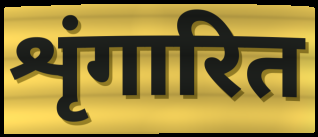
शृंगारित